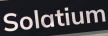
Solatium